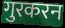
गुरकरन